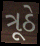
ત્રૂઠે